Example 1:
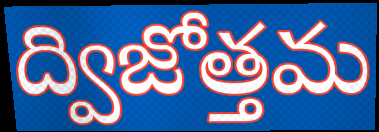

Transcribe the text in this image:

ద్విజోత్తమ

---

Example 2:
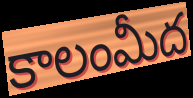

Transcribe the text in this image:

కాలంమీద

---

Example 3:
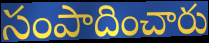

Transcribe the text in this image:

సంపాదించారు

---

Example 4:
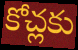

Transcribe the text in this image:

కోచ్లకు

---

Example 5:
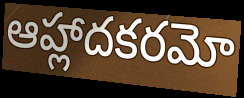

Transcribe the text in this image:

ఆహ్లాదకరమో